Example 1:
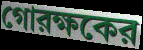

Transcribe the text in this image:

গোরক্ষকের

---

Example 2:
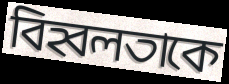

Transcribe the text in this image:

বিহ্বলতাকে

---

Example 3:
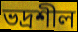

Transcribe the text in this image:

ভদ্রশীল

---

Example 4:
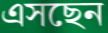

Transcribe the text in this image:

এসছেন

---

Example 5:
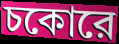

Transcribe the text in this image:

চকোরে